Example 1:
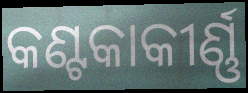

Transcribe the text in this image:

କଣ୍ଟକାକୀର୍ଣ୍ଣ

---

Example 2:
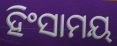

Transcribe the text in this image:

ହିଂସାମୟ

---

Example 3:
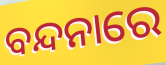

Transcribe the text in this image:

ବନ୍ଦନାରେ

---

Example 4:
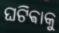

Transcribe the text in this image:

ଘଟିଵାକୁ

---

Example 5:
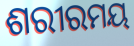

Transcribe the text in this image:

ଶରୀରମୟ